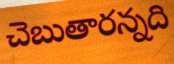
చెబుతారన్నది